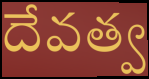
దేవత్వ